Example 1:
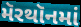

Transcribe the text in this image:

મૅરથૉનમાં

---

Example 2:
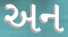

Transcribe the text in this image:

અન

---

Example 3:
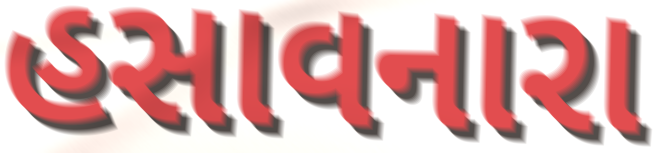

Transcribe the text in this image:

હસાવનારા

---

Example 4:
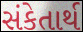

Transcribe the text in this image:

સંકેતાર્થ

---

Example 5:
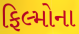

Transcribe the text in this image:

ફિલ્મોના